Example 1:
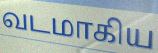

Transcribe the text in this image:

வடமாகிய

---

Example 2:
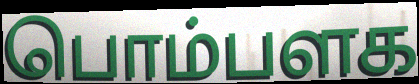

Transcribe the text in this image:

பொம்பளக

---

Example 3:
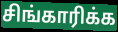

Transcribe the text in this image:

சிங்காரிக்க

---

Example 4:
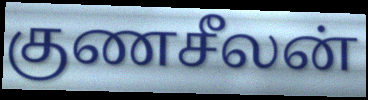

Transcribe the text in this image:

குணசீலன்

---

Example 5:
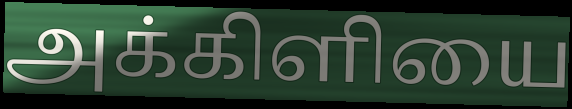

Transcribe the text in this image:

அக்கிளியை